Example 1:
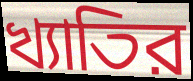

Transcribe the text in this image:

খ্যাতির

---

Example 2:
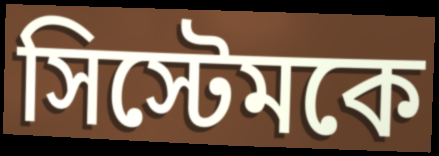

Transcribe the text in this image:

সিস্টেমকে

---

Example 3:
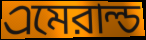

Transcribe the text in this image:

এমেরাল্ড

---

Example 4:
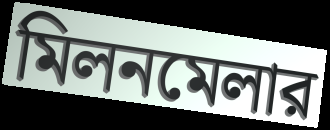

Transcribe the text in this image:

মিলনমেলার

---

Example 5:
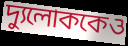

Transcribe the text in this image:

দ্যুলোককেও